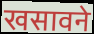
खसावने